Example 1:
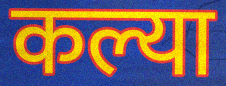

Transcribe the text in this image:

कल्या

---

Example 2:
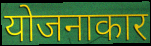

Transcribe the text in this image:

योजनाकार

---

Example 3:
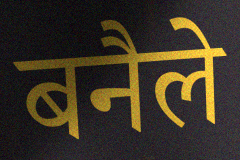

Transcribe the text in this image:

बनैले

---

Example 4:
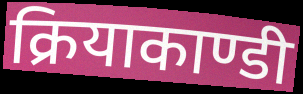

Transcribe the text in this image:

क्रियाकाण्डी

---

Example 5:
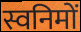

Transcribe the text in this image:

स्वनिमों